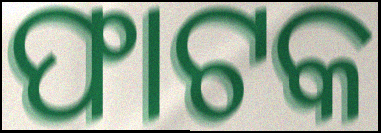
ଫାଟକ